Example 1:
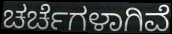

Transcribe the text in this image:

ಚರ್ಚೆಗಳಾಗಿವೆ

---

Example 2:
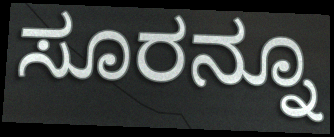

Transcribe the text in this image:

ಸೂರನ್ನೂ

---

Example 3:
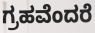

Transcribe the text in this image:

ಗ್ರಹವೆಂದರೆ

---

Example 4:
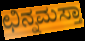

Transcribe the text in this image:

ಛಿನ್ನಮಸ್ತಾ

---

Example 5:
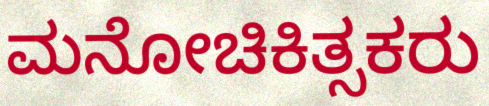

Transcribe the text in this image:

ಮನೋಚಿಕಿತ್ಸಕರು